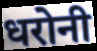
धरोनी